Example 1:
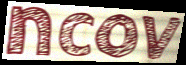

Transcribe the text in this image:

ncov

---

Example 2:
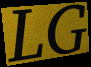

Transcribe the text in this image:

LG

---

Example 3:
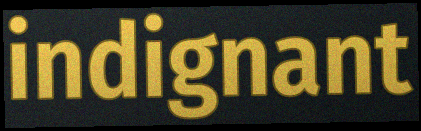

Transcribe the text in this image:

indignant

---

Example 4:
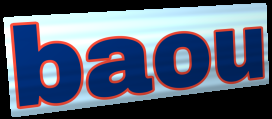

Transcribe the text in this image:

baou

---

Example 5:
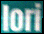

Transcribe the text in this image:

lori